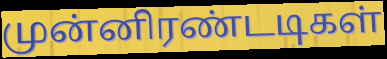
முன்னிரண்டடிகள்